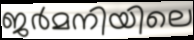
ജർമനിയിലെ